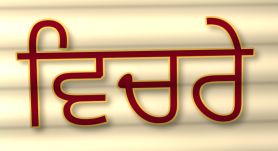
ਵਿਚਰੇ